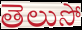
తెలుసో